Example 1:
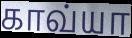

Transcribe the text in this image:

காவ்யா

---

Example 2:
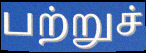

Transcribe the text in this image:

பற்றுச்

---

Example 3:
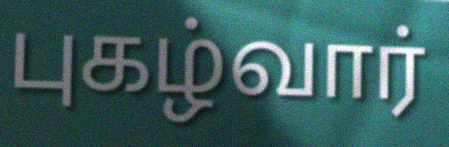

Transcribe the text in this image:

புகழ்வார்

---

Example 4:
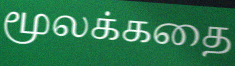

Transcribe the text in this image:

மூலக்கதை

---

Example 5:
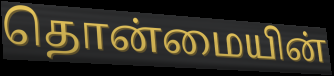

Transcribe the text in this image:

தொன்மையின்